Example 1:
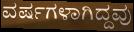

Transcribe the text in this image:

ವರ್ಷಗಳಾಗಿದ್ದವು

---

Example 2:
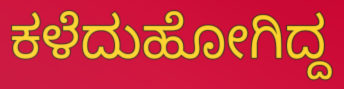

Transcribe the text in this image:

ಕಳೆದುಹೋಗಿದ್ದ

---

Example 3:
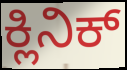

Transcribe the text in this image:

ಕ್ಲಿನಿಕ್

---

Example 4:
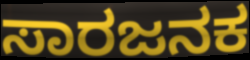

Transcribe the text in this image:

ಸಾರಜನಕ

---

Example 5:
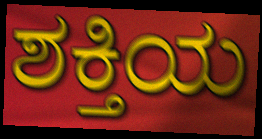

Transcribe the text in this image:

ಶಕ್ತಿಯ